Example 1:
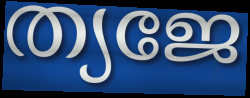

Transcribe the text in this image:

ത്യജേ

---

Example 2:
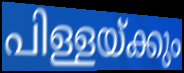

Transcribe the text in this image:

പിള്ളയ്ക്കും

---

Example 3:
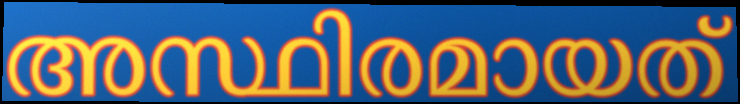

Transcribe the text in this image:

അസ്ഥിരമായത്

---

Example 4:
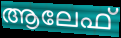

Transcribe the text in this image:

ആലേഫ്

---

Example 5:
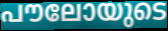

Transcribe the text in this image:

പൗലോയുടെ